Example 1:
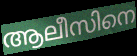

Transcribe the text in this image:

ആലീസിനെ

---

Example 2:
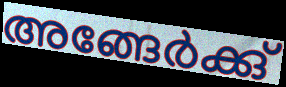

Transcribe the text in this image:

അങ്ങേർക്കു്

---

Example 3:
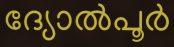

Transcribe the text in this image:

ദ്യോൽപൂർ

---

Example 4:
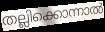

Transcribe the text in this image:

തല്ലിക്കൊന്നാൽ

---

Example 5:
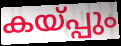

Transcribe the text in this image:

കയ്പ്പും